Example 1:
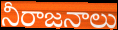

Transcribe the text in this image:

నీరాజనాలు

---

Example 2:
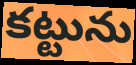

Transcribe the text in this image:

కట్టును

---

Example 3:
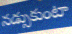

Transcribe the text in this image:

నడ్సుకుంటా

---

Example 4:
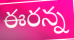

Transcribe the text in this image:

ఈరన్న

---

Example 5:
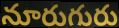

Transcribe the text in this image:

నూరుగురు